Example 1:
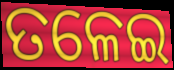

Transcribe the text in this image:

ତଳେଇ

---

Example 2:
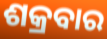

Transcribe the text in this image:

ଶକ୍ରବାର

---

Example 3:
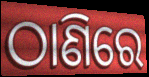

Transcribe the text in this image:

ଠାଣିରେ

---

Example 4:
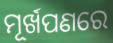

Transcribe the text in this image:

ମୂର୍ଖପଣରେ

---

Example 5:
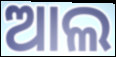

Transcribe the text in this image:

ଆଲ